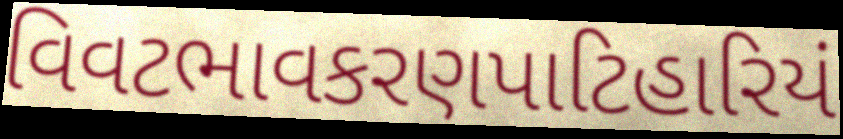
વિવટભાવકરણપાટિહારિયં